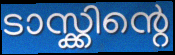
ടാസ്ക്കിന്റെ